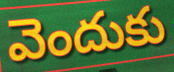
వెందుకు